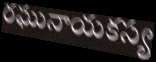
రఘునాయకస్య